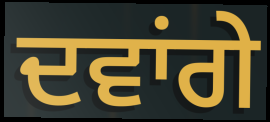
ਦਵਾਂਗੇ